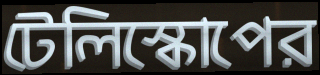
টেলিস্কোপের